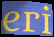
eri